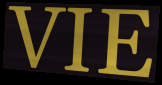
VIE